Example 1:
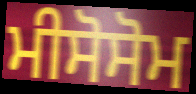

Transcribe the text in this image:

ਮੀਸੋਸੋਮ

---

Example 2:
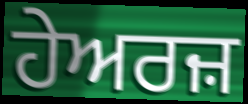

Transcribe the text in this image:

ਹੇਅਰਜ਼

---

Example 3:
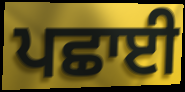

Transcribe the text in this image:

ਪਛਾਈ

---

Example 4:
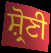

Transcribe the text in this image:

ਸ਼੍ਰੋਣੀ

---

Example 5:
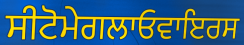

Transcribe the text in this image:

ਸੀਟੋਮੇਗਲਾਓਵਾਇਰਸ